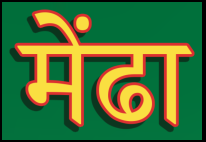
मेंढा